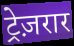
ट्रेज़रार